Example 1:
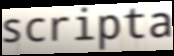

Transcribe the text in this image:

scripta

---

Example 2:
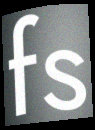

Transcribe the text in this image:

fs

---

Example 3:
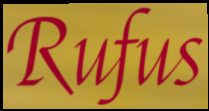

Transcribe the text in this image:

Rufus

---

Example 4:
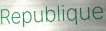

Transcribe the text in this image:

Republique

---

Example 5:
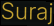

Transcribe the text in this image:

Suraj